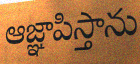
ఆజ్ఞాపిస్తాను